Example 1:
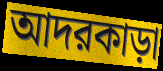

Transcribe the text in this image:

আদরকাড়া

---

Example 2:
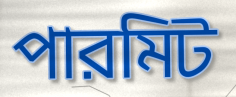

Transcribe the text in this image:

পারমিট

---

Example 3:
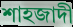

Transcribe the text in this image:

শাহজাদী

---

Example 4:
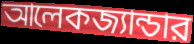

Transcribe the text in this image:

আলেকজ্যান্ডার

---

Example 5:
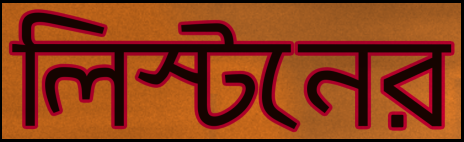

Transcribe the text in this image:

লিস্টনের